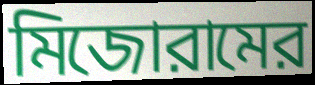
মিজোরামের